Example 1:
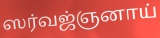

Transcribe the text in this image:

ஸர்வஜ்ஞனாய்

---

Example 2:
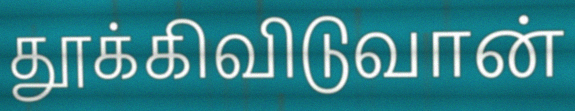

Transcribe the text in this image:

தூக்கிவிடுவான்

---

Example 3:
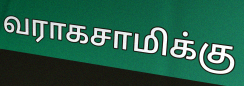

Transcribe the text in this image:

வராகசாமிக்கு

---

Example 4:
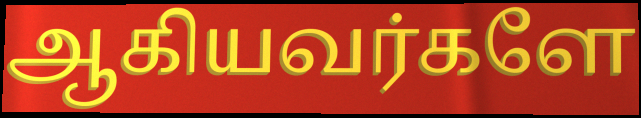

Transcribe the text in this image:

ஆகியவர்களே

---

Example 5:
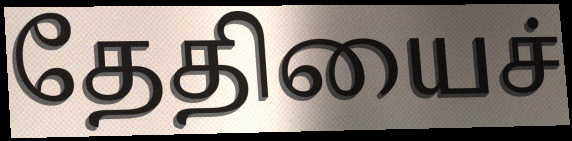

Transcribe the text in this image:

தேதியைச்